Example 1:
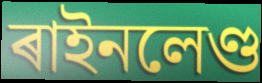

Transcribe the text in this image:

ৰাইনলেণ্ড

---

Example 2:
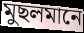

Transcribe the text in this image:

মুছলমানে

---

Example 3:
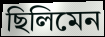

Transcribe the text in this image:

ছিলিমেন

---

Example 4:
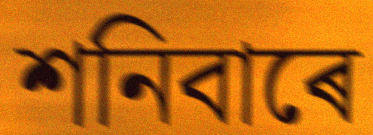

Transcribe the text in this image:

শনিবাৰে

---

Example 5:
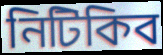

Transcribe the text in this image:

নিটিকিব